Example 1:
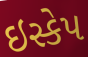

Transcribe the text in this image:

ઇસ્કેપ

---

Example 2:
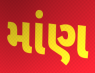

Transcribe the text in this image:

માંણ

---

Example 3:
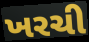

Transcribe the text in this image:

ખરચી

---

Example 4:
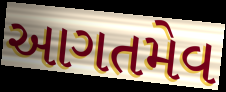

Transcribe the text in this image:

આગતમેવ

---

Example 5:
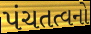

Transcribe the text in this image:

પંચતત્વનો